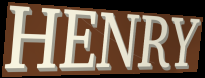
HENRY